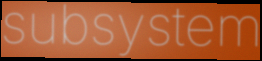
subsystem